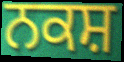
ਨਕਸ਼